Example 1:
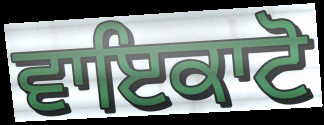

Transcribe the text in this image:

ਵਾਇਕਾਟੋ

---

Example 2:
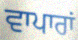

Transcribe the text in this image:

ਵਾਪਾਰਾਂ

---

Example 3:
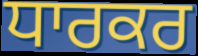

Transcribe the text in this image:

ਧਾਰਕਰ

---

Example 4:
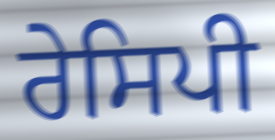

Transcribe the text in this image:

ਰੇਸਿਪੀ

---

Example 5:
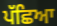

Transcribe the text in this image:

ਪੱਛਿਆ